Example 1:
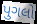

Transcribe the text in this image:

પુગલો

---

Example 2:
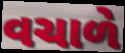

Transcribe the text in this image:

વચાળે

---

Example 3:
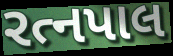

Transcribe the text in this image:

રત્નપાલ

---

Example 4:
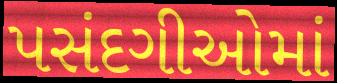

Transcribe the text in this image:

પસંદગીઓમાં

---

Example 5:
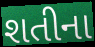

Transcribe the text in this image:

શતીના